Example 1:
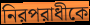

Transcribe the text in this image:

নিরপরাধীকে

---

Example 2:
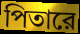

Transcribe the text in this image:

পিতারে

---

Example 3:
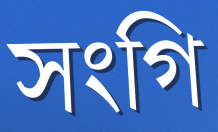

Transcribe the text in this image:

সংগি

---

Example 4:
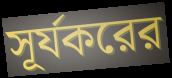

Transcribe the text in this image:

সূর্যকরের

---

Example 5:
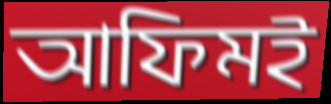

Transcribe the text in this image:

আফিমই